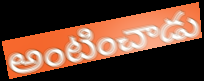
అంటించాడు